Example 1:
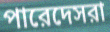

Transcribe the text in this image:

পারেদেসরা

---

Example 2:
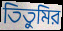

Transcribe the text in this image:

তিতুমির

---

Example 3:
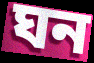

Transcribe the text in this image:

ঘন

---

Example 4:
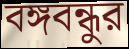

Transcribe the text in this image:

বঙ্গবন্ধুর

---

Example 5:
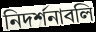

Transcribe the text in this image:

নিদর্শনাবলি